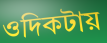
ওদিকটায়